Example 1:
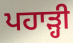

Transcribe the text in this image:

ਪਹਾੜ੍ਹੀ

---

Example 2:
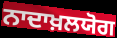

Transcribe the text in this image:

ਨਾਦਾਖ਼ਲਯੋਗ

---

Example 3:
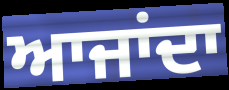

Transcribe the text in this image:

ਆਜਾਂਦਾ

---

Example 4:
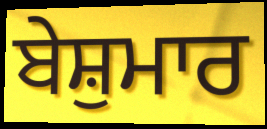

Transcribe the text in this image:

ਬੇਸ਼ੁਮਾਰ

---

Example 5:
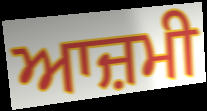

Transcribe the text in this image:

ਆਜ਼ਮੀ